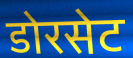
डोरसेट